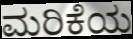
ಮರಿಕೆಯ